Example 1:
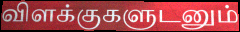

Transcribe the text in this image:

விளக்குகளுடனும்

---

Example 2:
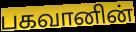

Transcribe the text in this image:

பகவானின்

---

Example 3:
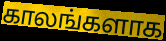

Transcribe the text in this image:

காலங்களாக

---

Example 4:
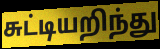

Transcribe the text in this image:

சுட்டியறிந்து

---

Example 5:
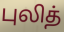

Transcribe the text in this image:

புலித்